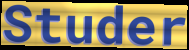
Studer